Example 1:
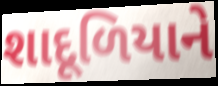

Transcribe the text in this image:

શાદૂળિયાને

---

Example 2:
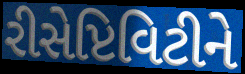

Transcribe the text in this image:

રીસેપ્ટિવિટીને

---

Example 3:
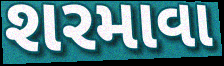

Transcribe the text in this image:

શરમાવા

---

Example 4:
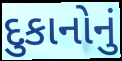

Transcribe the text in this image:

દુકાનોનું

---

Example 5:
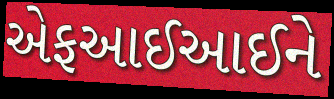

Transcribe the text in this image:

એફઆઈઆઈને